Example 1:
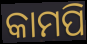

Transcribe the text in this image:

କାମପି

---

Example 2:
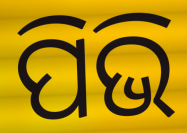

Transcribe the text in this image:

ପିଭି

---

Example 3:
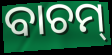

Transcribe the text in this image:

ବାଚମ୍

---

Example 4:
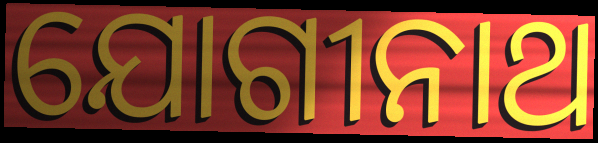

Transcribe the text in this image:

ଯୋଗୀନାଥ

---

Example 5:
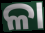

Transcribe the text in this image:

ଳା